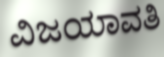
ವಿಜಯಾವತಿ